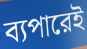
ব্যপারেই